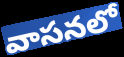
వాసనలో